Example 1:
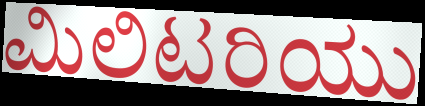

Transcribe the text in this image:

ಮಿಲಿಟರಿಯು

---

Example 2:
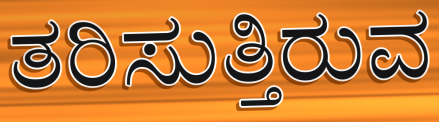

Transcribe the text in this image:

ತರಿಸುತ್ತಿರುವ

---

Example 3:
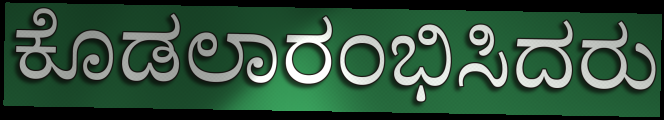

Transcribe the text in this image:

ಕೊಡಲಾರಂಭಿಸಿದರು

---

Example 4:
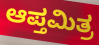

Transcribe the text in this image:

ಆಪ್ತಮಿತ್ರ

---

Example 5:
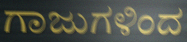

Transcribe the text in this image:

ಗಾಜುಗಳಿಂದ